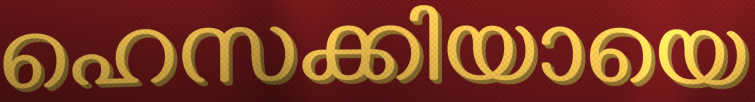
ഹെസക്കിയായെ